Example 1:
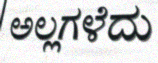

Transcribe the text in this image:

ಅಲ್ಲಗಳೆದು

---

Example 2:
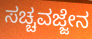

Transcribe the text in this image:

ಸಚ್ಚವಜ್ಜೇನ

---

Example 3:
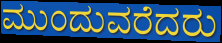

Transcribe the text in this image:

ಮುಂದುವರೆದರು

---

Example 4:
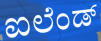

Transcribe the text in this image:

ಐಲೆಂಡ್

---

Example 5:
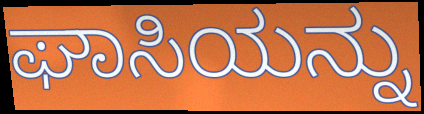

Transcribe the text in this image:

ಘಾಸಿಯನ್ನು